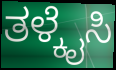
ತಳ್ಕೈಸಿ